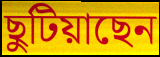
ছুটিয়াছেন